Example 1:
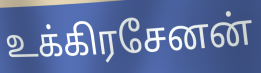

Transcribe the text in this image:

உக்கிரசேனன்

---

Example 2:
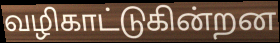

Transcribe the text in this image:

வழிகாட்டுகின்றன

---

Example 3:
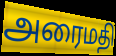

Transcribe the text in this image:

அரைமதி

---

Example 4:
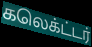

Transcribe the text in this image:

கலெக்ட்டர்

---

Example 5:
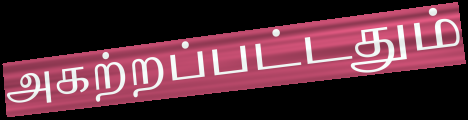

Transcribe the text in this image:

அகற்றப்பட்டதும்